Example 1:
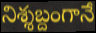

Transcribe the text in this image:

నిశ్శబ్దంగానే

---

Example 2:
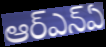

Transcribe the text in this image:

ఆర్ఎన్ఏ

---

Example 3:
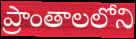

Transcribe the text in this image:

ప్రాంతాలలోని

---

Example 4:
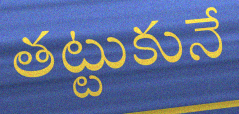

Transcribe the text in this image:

తట్టుకునే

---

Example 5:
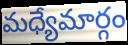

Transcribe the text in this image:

మధ్యేమార్గం